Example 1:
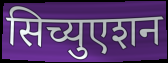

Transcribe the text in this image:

सिच्युएशन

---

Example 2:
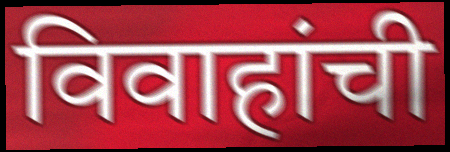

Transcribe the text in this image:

विवाहांची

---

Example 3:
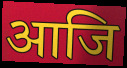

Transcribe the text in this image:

आजि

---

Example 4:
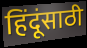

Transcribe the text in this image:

हिंदूंसाठी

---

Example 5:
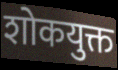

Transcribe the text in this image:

शोकयुक्त